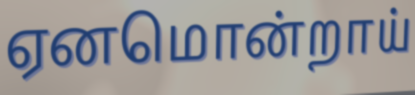
ஏனமொன்றாய்